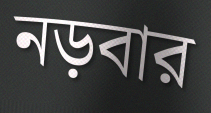
নড়বার